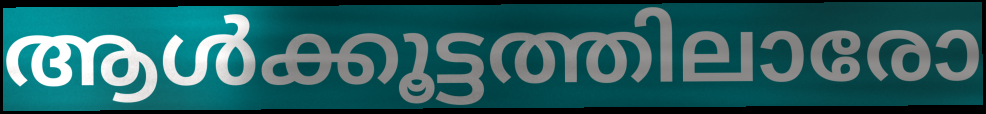
ആൾക്കൂട്ടത്തിലാരോ